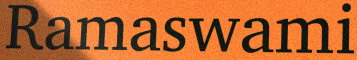
Ramaswami